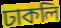
ঢাকলি